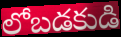
లోబడకుడి